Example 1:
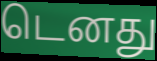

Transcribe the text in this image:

டெனது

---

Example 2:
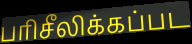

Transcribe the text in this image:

பரிசீலிக்கப்பட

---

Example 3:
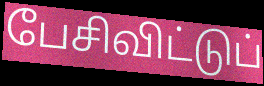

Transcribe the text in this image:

பேசிவிட்டுப்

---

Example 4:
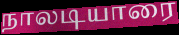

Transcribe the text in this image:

நாலடியாரை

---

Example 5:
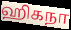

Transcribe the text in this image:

ஹிகநா